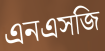
এনএসজি